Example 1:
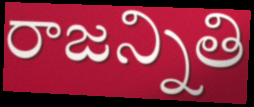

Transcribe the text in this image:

రాజన్నితి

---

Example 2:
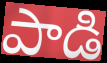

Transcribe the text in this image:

పాడి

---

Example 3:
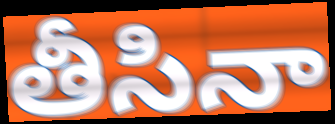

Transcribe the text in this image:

తీసినా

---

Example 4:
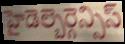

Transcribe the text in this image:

హైడెల్బెర్గెన్సిస్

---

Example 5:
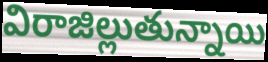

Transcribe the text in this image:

విరాజిల్లుతున్నాయి